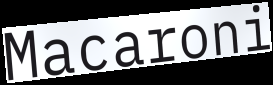
Macaroni